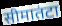
सीमातंटा